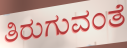
ತಿರುಗುವಂತೆ